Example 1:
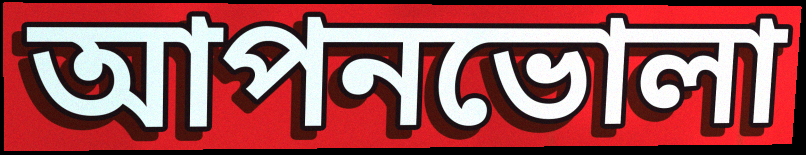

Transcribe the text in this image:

আপনভোলা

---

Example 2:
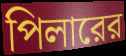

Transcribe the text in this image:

পিলারের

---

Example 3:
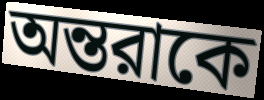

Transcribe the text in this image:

অন্তরাকে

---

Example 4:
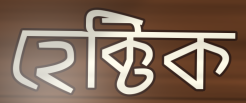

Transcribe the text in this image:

হেক্টিক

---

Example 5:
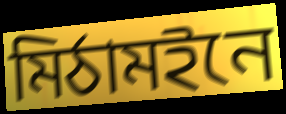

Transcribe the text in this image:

মিঠামইনে